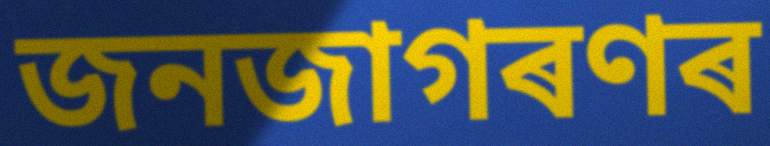
জনজাগৰণৰ